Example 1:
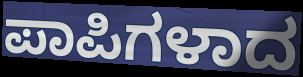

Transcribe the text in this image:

ಪಾಪಿಗಳಾದ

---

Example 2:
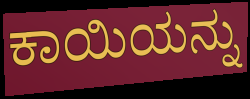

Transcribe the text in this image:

ಕಾಯಿಯನ್ನು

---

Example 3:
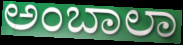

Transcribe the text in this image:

ಅಂಬಾಲಾ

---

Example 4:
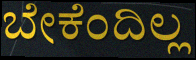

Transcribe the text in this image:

ಬೇಕೆಂದಿಲ್ಲ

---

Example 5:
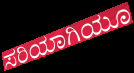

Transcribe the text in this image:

ಸರಿಯಾಗಿಯೂ